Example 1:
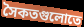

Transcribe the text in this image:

সৈকতগুলোতে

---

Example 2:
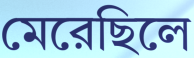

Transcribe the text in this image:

মেরেছিলে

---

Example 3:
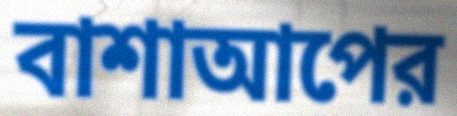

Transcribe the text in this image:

বাশাআপের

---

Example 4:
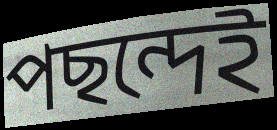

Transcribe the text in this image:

পছন্দেই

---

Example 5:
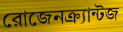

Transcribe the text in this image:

রোজেনক্র্যান্টজ